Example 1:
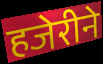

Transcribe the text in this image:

हजेरीने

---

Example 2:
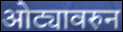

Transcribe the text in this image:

ओट्यावरुन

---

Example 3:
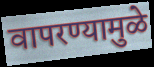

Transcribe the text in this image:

वापरण्यामुळे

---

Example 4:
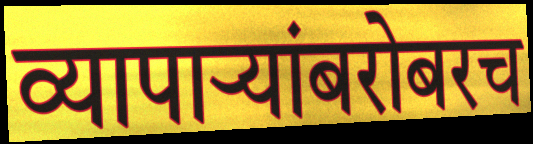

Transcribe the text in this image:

व्यापाऱ्यांबरोबरच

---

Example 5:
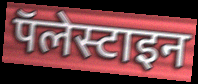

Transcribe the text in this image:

पॅलेस्टाइन